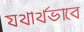
যথার্থভাবে